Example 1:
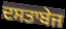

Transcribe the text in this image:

ਦਸਤਾਬੇਜ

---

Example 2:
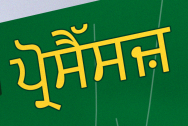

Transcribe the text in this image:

ਪ੍ਰੋਸੈੱਸਜ਼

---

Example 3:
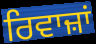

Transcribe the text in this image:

ਰਿਵਾਜ਼ਾਂ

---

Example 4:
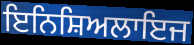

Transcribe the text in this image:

ਇਨਿਸ਼ਿਅਲਾਇਜ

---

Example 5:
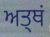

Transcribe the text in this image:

ਅਤ੍ਥਂ